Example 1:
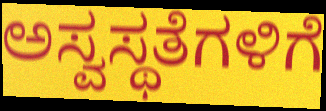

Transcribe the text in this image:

ಅಸ್ವಸ್ಥತೆಗಳಿಗೆ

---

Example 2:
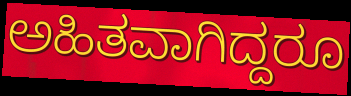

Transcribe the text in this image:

ಅಹಿತವಾಗಿದ್ದರೂ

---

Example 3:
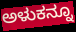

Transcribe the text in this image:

ಅಳುಕನ್ನೂ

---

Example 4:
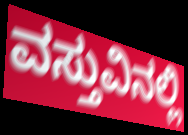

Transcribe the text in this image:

ವಸ್ತುವಿನಲ್ಲಿ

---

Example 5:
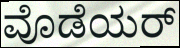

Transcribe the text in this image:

ವೊಡೆಯರ್